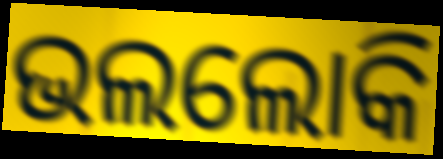
ଭଲଲୋକି